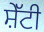
ਸ਼ੇੱਟੀ